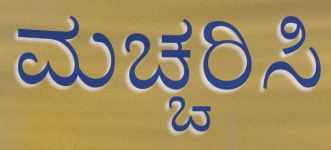
ಮಚ್ಚರಿಸಿ